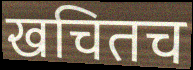
खचितच